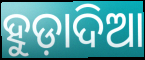
ହୁଡ଼ାଦିଆ